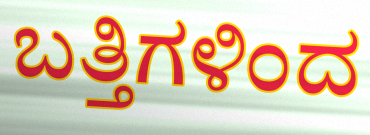
ಬತ್ತಿಗಳಿಂದ